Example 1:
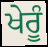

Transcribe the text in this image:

ਖੇਰੂੰ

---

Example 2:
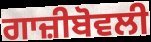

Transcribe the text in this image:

ਗਾਜ਼ੀਬੋਵਲੀ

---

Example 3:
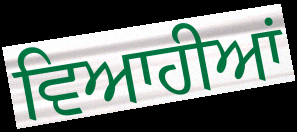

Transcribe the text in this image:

ਵਿਆਹੀਆਂ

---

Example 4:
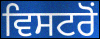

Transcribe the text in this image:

ਵਿਸਟਰੋਂ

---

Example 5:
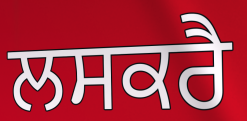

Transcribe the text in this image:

ਲਸਕਰੈ